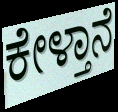
ಕೇಳ್ತಾನೆ